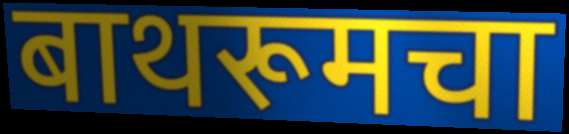
बाथरूमचा